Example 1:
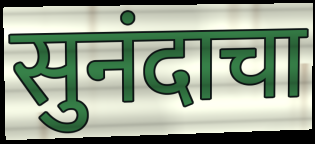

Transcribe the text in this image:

सुनंदाचा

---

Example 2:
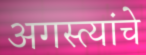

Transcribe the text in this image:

अगस्त्यांचे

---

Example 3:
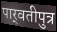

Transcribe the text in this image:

पार्वतीपुत्र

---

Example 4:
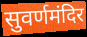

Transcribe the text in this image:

सुवर्णमंदिर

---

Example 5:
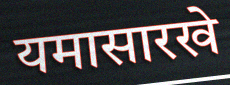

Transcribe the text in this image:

यमासारखे